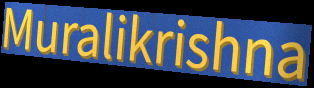
Muralikrishna